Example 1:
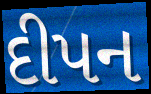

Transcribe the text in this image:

દીપન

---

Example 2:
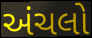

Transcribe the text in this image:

અંચલો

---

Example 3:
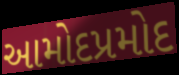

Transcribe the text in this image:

આમોદપ્રમોદ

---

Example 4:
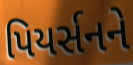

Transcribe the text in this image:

પિયર્સનને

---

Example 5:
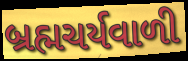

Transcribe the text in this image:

બ્રહ્મચર્યવાળી